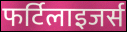
फर्टिलाइजर्स